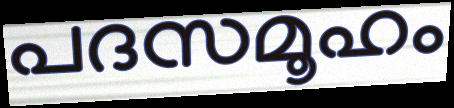
പദസമൂഹം